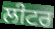
ਲੀਟਰ